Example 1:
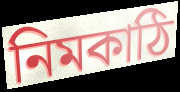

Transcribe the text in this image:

নিমকাঠি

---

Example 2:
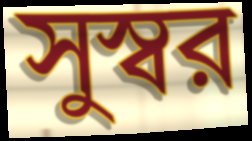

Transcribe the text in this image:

সুস্বর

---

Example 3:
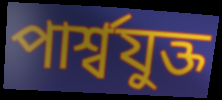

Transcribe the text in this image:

পার্শ্বযুক্ত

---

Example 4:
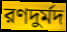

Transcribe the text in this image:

রণদুর্মদ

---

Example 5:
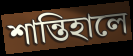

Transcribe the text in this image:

শান্তিহালে